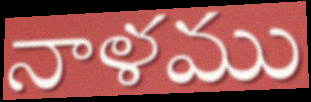
నాళము